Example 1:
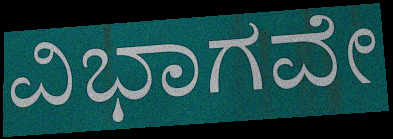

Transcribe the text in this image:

ವಿಭಾಗವೇ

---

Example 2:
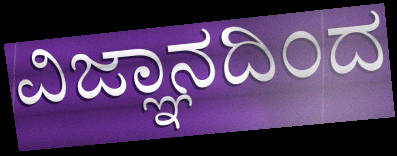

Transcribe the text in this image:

ವಿಜ್ಞಾನದಿಂದ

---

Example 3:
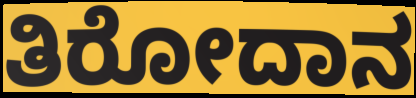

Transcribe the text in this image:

ತಿರೋದಾನ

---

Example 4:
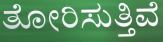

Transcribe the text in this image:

ತೋರಿಸುತ್ತಿವೆ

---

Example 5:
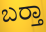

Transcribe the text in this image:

ಬರ‍್ತಾ